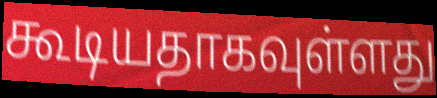
கூடியதாகவுள்ளது